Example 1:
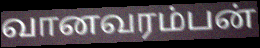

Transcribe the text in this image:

வானவரம்பன்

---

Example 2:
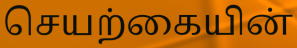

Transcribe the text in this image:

செயற்கையின்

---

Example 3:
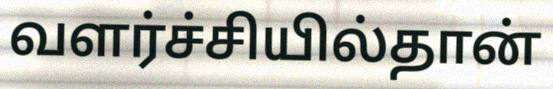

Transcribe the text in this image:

வளர்ச்சியில்தான்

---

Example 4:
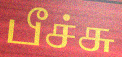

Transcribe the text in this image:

பீச்சு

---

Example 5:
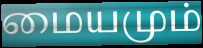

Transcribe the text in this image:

மையமும்